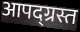
आपद्ग्रस्त